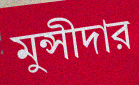
মুন্সীদার